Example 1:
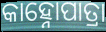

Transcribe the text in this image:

କାହ୍ନୋପାତ୍ରା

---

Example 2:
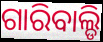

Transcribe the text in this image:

ଗାରିବାଲ୍ଡି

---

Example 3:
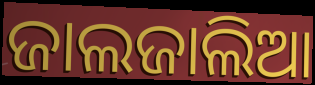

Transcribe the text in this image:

ଜାଲଜାଲିଆ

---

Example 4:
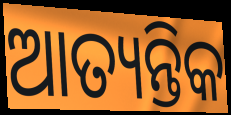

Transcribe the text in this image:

ଆତ୍ୟନ୍ତିକ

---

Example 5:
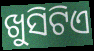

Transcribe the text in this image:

ଖୁସିଟିଏ